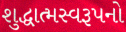
શુદ્ધાત્મસ્વરૂપનો